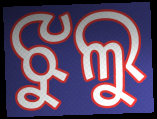
ଝୁଲୁ